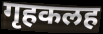
गृहकलह